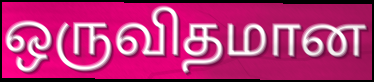
ஒருவிதமான